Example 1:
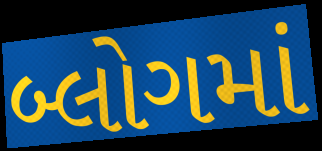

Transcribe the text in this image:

બ્લોગમાં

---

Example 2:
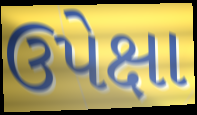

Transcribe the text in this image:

ઉપેક્ષા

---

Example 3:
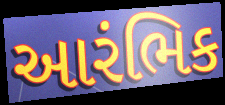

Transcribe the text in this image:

આરંભિક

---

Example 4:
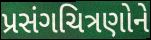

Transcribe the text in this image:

પ્રસંગચિત્રણોને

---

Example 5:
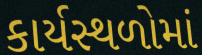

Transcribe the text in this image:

કાર્યસ્થળોમાં